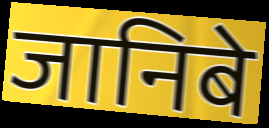
जानिबे